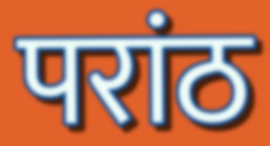
परांठ